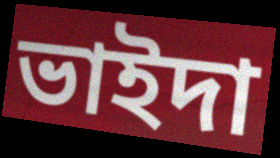
ভাইদা